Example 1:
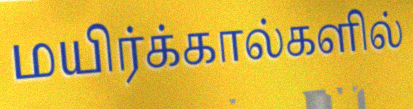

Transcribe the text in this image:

மயிர்க்கால்களில்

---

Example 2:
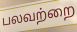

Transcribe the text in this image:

பலவற்றை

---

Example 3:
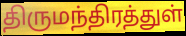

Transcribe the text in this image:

திருமந்திரத்துள்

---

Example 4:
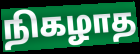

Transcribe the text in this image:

நிகழாத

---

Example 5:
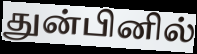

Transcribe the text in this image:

துன்பினில்